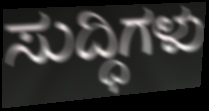
ಸುದ್ಧಿಗಳು